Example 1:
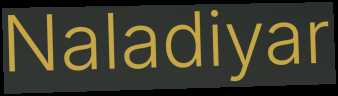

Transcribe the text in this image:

Naladiyar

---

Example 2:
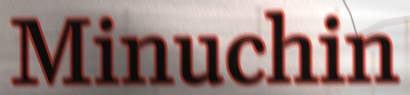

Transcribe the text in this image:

Minuchin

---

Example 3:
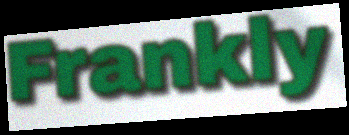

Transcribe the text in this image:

Frankly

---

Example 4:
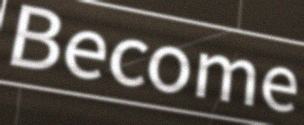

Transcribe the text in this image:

Become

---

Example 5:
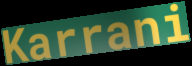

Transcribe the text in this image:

Karrani